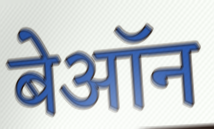
बेऑन